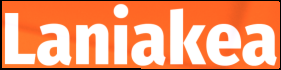
Laniakea